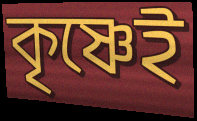
কৃষ্ণেই